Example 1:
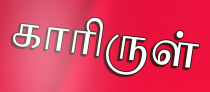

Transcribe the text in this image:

காரிருள்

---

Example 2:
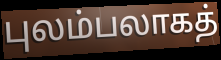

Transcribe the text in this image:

புலம்பலாகத்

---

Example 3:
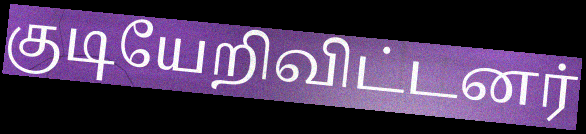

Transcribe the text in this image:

குடியேறிவிட்டனர்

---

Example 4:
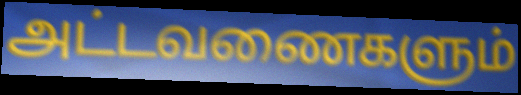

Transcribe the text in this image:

அட்டவணைகளும்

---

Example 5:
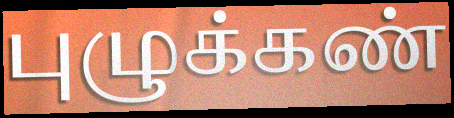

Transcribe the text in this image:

புழுக்கண்